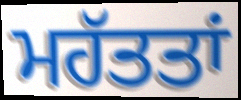
ਮਹੱਤਤਾਂ